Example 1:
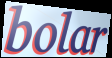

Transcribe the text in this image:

bolar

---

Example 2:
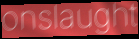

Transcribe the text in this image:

onslaught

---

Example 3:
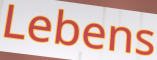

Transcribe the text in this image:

Lebens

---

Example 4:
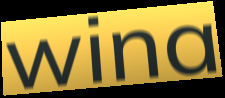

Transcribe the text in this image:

wina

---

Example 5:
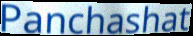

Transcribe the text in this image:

Panchashat